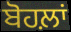
ਬੋਹਲ਼ਾਂ